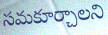
సమకూర్చాలని